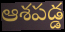
ఆశపడ్డ